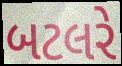
બટલરે